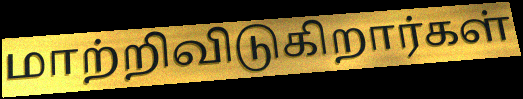
மாற்றிவிடுகிறார்கள்